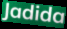
Jadida